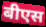
बीएस